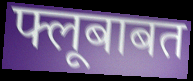
फ्लूबाबत